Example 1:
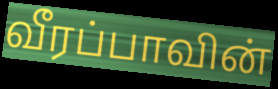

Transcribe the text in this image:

வீரப்பாவின்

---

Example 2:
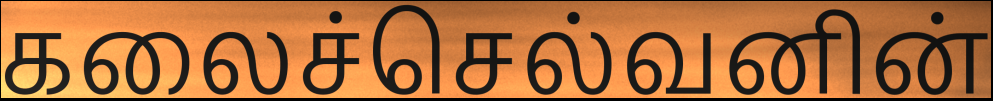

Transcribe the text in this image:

கலைச்செல்வனின்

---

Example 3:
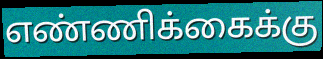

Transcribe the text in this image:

எண்ணிக்கைக்கு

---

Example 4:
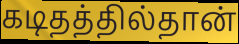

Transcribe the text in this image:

கடிதத்தில்தான்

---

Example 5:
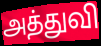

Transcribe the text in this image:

அத்துவி